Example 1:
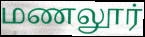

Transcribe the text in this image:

மணலூர்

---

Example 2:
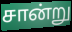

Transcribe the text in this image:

சான்று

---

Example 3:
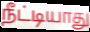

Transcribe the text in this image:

நீட்டியாது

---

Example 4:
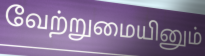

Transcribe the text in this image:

வேற்றுமையினும்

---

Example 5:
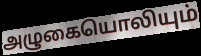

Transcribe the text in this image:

அழுகையொலியும்